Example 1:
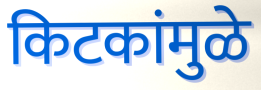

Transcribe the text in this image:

किटकांमुळे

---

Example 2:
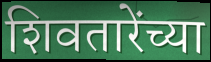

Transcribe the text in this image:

शिवतारेंच्या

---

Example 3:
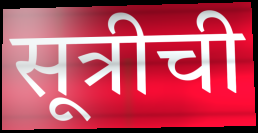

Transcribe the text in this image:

सूत्रीची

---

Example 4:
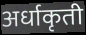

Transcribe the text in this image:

अर्धाकृती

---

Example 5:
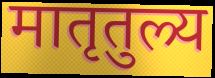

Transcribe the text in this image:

मातृतुल्य